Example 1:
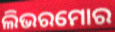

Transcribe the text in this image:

ଲିଭରମୋର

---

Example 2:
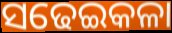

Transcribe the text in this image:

ସଢେଇକଳା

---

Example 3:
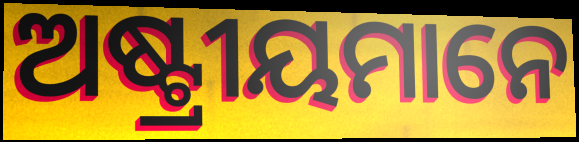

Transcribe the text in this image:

ଅଷ୍ଟ୍ରୀୟମାନେ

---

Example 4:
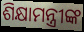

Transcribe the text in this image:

ଶିକ୍ଷାମନ୍ତ୍ରୀଙ୍କ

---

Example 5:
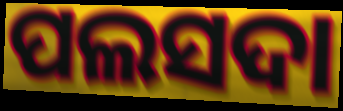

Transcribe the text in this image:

ପଲସଦା